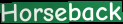
Horseback